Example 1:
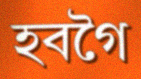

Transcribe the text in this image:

হবগৈ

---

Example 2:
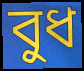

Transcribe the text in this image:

বুধ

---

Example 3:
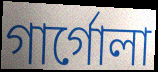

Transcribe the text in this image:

গাৰ্গোলা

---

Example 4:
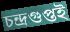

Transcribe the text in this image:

চন্দ্ৰগুপ্তই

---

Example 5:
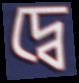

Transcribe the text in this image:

দ্বে